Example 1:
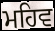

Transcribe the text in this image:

ਮਹਿਵ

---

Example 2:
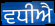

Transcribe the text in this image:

ਵਧੀਐ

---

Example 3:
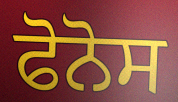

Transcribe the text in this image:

ਫੋਨੋਸ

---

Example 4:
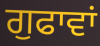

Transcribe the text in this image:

ਗੁਫਾਵਾਂ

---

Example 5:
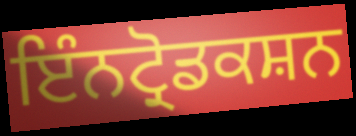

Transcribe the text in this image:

ਇੰਨਟ੍ਰੋਡਕਸ਼ਨ